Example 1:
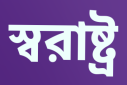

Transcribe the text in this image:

স্বরাষ্ট্র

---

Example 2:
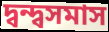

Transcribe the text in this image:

দ্বন্দ্বসমাস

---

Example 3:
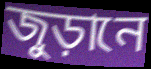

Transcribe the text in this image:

জুড়ানে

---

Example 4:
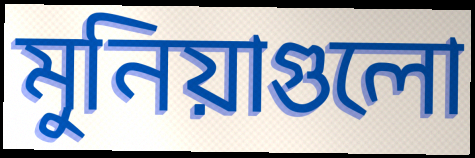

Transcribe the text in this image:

মুনিয়াগুলো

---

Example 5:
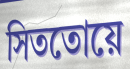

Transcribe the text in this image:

সিততোয়ে